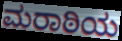
ಮರಾಠಿಯ